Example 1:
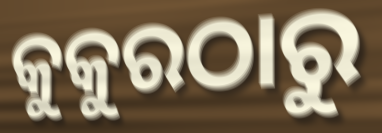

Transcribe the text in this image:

କୁକୁରଠାରୁ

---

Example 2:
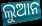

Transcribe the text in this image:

ଲୁଆନ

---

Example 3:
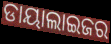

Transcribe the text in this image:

ଡାୟାଲାଇଜର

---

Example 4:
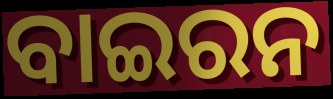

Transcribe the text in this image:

ବାଇରନ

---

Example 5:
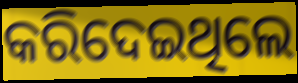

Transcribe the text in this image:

କରିଦେଇଥିଲେ